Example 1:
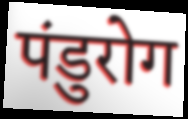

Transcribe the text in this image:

पंडुरोग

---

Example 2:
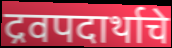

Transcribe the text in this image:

द्रवपदार्थाचे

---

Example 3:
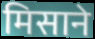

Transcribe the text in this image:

मिसाने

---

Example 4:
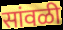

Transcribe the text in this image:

सांवळी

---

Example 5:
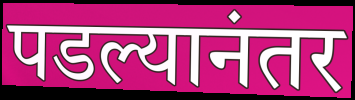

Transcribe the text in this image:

पडल्यानंतर